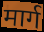
मार्ग